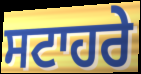
ਸਟਾਹਰੇ